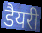
डैयरी